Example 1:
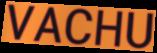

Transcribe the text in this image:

VACHU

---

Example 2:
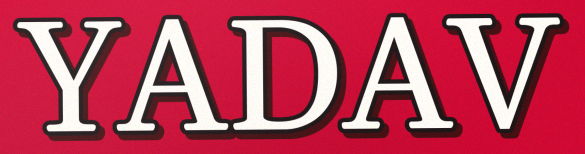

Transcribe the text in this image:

YADAV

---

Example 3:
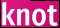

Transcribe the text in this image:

knot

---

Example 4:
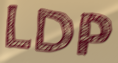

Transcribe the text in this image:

LDP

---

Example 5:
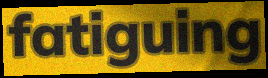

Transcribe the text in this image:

fatiguing